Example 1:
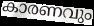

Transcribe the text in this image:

കാരണവും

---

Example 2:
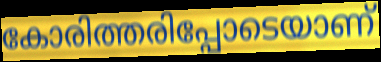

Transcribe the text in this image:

കോരിത്തരിപ്പോടെയാണ്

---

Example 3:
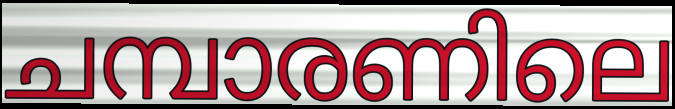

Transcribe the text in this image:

ചമ്പാരണിലെ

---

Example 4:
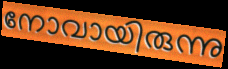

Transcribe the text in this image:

നോവായിരുന്നു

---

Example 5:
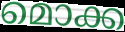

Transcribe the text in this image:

മൊക്ക